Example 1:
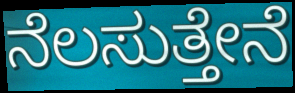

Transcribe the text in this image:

ನೆಲಸುತ್ತೇನೆ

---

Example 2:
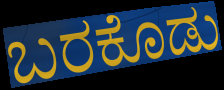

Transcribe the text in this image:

ಬರಕೊಡು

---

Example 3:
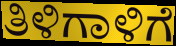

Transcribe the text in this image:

ತಿಳಿಗಾಳಿಗೆ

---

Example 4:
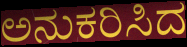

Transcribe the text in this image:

ಅನುಕರಿಸಿದ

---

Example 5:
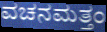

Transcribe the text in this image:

ವಚನಮತ್ತಂ